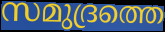
സമുദ്രത്തെ